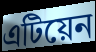
এটিয়েন